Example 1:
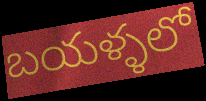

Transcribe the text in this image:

బయళ్ళలో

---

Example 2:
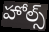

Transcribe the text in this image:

హోల్స్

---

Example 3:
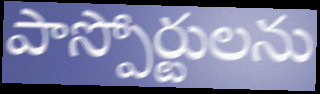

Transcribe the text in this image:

పాస్పోర్టులను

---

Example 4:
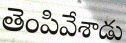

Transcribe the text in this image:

తెంపివేశాడు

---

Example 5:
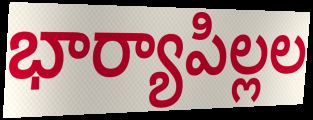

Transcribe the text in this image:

భార్యాపిల్లల